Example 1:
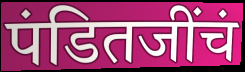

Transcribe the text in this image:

पंडितजींचं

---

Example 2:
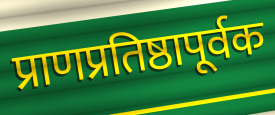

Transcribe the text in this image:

प्राणप्रतिष्ठापूर्वक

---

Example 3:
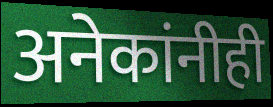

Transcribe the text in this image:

अनेकांनीही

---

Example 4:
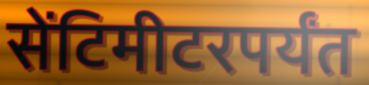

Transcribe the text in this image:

सेंटिमीटरपर्यंत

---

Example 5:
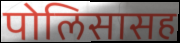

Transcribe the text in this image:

पोलिसासह